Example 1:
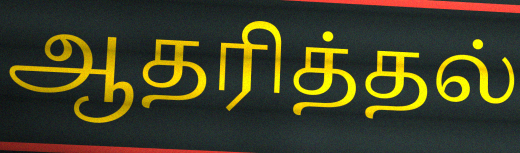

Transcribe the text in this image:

ஆதரித்தல்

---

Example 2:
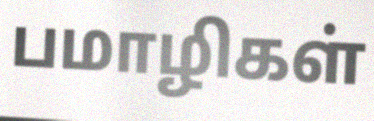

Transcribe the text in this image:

பமாழிகள்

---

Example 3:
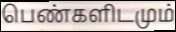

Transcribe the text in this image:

பெண்களிடமும்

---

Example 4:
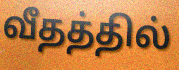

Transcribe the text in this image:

வீதத்தில்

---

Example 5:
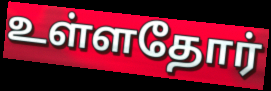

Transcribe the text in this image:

உள்ளதோர்